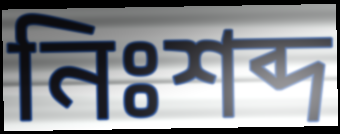
নিঃশব্দ